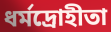
ধর্মদ্রোহীতা